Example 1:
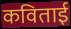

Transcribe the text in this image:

कविताई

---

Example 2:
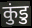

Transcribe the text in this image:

कुंडु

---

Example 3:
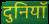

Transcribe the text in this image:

दुनियॉ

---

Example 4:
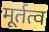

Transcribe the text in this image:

मूर्तत्व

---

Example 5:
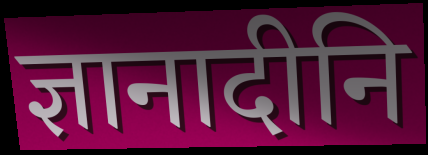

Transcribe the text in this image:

ज्ञानादीनि